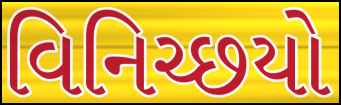
વિનિચ્છયો